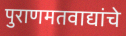
पुराणमतवाद्यांचे